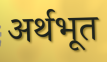
अर्थभूत